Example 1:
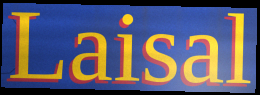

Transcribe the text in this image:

Laisal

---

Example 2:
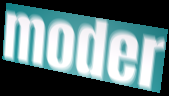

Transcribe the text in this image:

moder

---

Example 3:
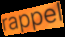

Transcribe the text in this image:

rappel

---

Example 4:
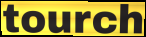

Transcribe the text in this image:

tourch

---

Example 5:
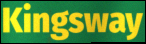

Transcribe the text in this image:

Kingsway